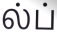
ல்ப்